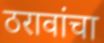
ठरावांचा